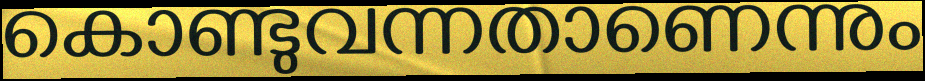
കൊണ്ടുവന്നതാണെന്നും